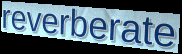
reverberate